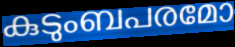
കുടുംബപരമോ